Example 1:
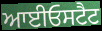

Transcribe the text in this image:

ਆਈਓਸਟੈਟ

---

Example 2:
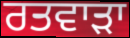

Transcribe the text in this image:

ਰਤਵਾੜਾ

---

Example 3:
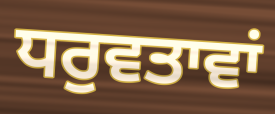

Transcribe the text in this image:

ਧਰੁਵਤਾਵਾਂ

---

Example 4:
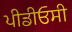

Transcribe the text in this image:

ਪੀਡੀਓਸੀ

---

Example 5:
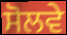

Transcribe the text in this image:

ਸੋਲਵੇ